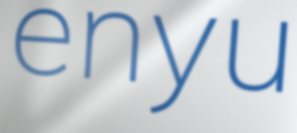
enyu